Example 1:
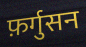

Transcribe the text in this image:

फ़र्गुसन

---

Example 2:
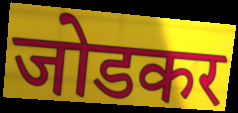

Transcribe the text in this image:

जोडकर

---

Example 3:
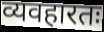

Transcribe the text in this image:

व्यवहारतः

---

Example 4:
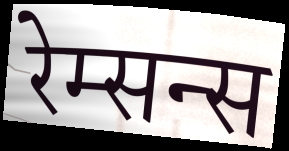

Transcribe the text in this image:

रेम्सन्स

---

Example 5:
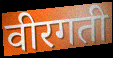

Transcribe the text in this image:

वीरगती